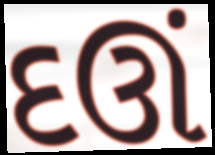
દઊં